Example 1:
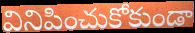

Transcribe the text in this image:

వినిపించుకోకుండా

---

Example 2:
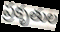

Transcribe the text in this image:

ప్రకృతుల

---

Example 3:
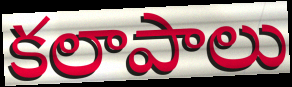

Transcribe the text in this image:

కలాపాలు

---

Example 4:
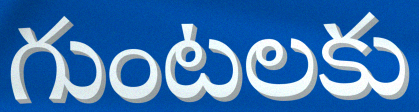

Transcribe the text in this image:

గుంటలకు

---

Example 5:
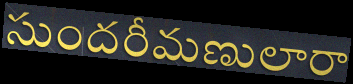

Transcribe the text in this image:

సుందరీమణులారా